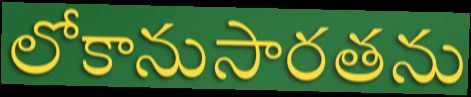
లోకానుసారతను